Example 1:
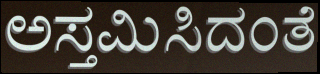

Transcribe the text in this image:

ಅಸ್ತಮಿಸಿದಂತೆ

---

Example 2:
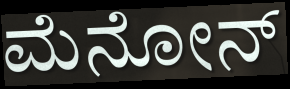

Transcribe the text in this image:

ಮೆನೋನ್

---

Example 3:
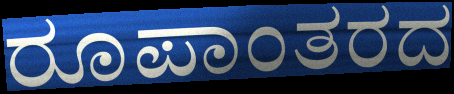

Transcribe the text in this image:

ರೂಪಾಂತರದ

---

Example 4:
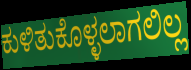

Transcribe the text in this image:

ಕುಳಿತುಕೊಳ್ಳಲಾಗಲಿಲ್ಲ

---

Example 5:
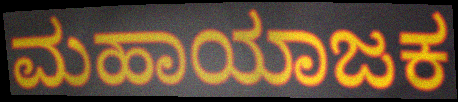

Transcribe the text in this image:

ಮಹಾಯಾಜಕ